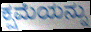
ಕ್ಷಮೆಯನ್ನು